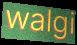
walgi